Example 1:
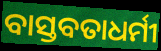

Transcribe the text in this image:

ବାସ୍ତବତାଧର୍ମୀ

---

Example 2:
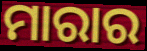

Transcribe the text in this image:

ମାରାର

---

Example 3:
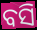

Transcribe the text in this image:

ବସି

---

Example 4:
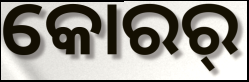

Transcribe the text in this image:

କୋରର୍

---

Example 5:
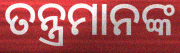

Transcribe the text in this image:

ତନ୍ତ୍ରମାନଙ୍କ